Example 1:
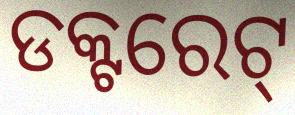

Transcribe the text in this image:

ଡକ୍ଟରେଟ୍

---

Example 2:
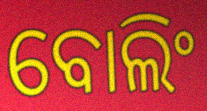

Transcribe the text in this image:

ବୋଲିଂ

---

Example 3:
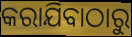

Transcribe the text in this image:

କରାଯିବାଠାରୁ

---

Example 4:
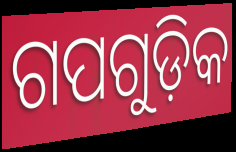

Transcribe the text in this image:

ଗପଗୁଡ଼ିକ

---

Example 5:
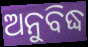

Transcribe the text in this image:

ଅନୁବିଦ୍ଧ